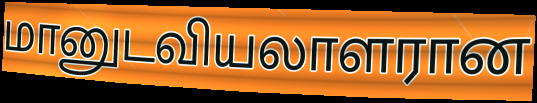
மானுடவியலாளரான